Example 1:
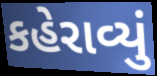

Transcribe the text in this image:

કહેરાવ્યું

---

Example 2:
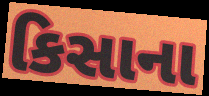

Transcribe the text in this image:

કિસાના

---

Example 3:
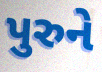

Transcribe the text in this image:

પુરુને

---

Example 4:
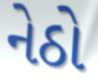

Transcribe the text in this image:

નેઠો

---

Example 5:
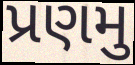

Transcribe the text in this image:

પ્રણમુ